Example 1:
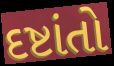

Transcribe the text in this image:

દષ્ટાંતો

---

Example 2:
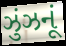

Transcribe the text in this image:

ઝુંઝનૂં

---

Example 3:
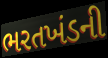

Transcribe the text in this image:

ભરતખંડની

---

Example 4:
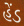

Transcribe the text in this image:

હેંડ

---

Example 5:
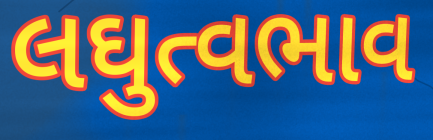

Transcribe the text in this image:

લઘુત્વભાવ